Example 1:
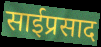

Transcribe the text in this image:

साईप्रसाद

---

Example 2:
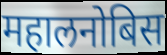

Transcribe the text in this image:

महालनोबिस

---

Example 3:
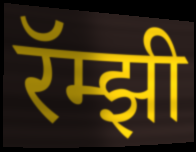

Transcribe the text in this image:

रॅम्झी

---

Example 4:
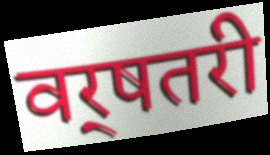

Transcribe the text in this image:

वर्षतरी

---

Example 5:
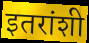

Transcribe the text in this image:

इतरांशी